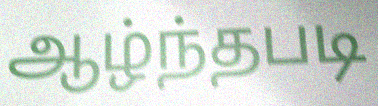
ஆழ்ந்தபடி